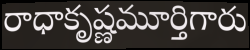
రాధాకృష్ణమూర్తిగారు